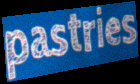
pastries